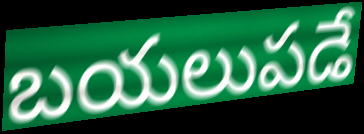
బయలుపడే